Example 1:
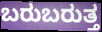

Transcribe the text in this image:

ಬರುಬರುತ್ತ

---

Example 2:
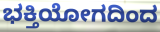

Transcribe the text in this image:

ಭಕ್ತಿಯೋಗದಿಂದ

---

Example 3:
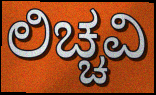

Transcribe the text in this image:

ಲಿಚ್ಚವಿ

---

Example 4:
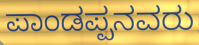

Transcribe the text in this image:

ಪಾಂಡಪ್ಪನವರು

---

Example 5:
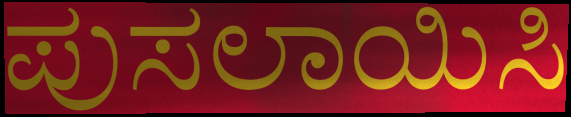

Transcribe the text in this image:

ಪುಸಲಾಯಿಸಿ